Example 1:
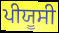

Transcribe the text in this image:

ਪੀਯੂਸੀ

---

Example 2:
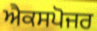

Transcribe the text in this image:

ਐਕਸਪੋਜਰ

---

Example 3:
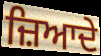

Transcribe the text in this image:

ਜ਼ਿਆਦੇ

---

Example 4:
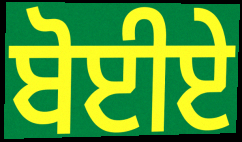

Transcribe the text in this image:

ਬੋਈਏ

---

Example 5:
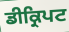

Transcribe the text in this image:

ਡੀਕ੍ਰਿਪਟ